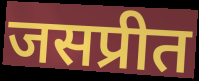
जसप्रीत